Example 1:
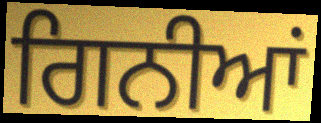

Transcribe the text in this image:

ਗਿਨੀਆਂ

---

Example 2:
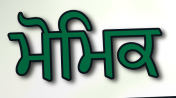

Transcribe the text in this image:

ਮੋਮਿਕ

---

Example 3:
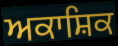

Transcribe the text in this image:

ਅਕਾਸ਼ਿਕ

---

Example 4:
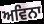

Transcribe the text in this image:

ਅਵਿਨਾ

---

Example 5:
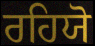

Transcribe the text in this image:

ਰਹਿਯੋ